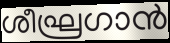
ശീഘ്രഗാൻ